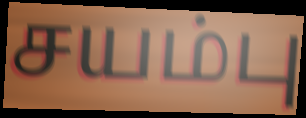
சயம்பு